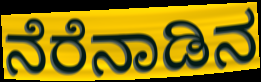
ನೆರೆನಾಡಿನ